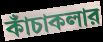
কাঁচাকলার